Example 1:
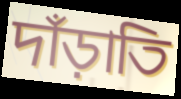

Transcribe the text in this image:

দাঁড়াতি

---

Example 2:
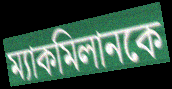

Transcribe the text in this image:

ম্যাকমিলানকে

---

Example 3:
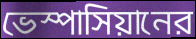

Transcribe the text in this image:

ভেস্পাসিয়ানের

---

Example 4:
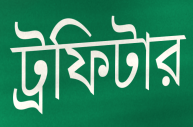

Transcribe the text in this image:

ট্রফিটার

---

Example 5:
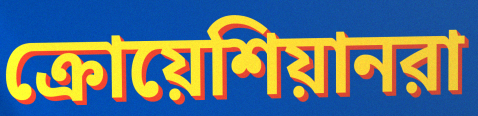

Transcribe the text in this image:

ক্রোয়েশিয়ানরা